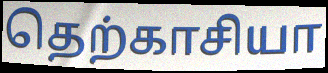
தெற்காசியா